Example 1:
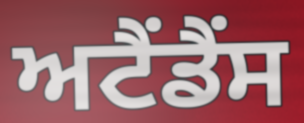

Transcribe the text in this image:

ਅਟੈਂਡੈਂਸ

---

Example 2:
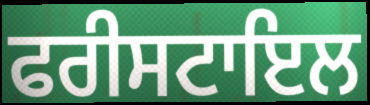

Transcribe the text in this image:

ਫਰੀਸਟਾਇਲ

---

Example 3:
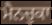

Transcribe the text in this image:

ਮੈਨਚੁਕਾ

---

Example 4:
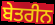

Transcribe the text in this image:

ਬੇਤਰੀਨ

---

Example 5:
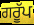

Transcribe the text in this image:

ਗਰੂੱਪ